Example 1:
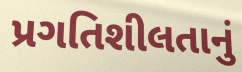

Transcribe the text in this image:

પ્રગતિશીલતાનું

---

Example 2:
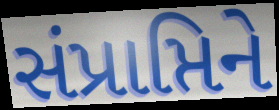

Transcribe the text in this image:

સંપ્રાપ્તિને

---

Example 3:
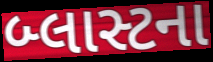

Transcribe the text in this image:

બ્લાસ્ટના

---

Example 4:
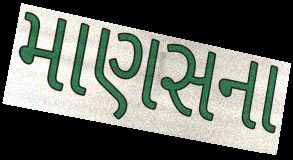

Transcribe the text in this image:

માણસના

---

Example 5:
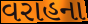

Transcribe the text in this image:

વરાહના